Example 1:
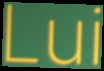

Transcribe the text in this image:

Lui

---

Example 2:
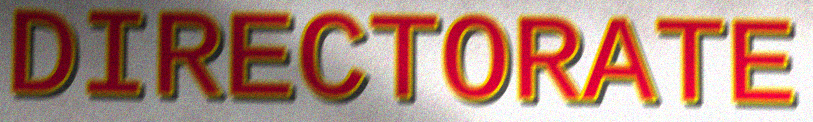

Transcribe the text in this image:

DIRECTORATE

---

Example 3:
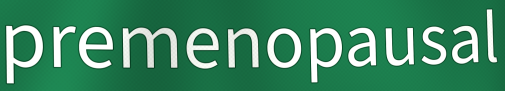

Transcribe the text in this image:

premenopausal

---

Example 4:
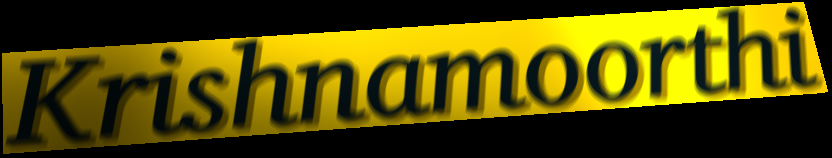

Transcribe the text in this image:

Krishnamoorthi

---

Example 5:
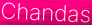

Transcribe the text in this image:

Chandas